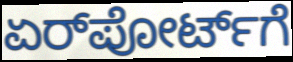
ಏರ್‌ಪೋರ್ಟ್‌ಗೆ